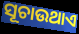
ସୂଚାଉଥାଏ